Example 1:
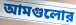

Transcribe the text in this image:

আমগুলোর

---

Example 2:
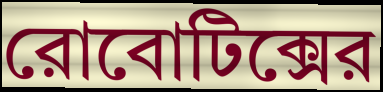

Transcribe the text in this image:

রোবোটিক্সের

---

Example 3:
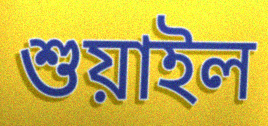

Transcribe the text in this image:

শুয়াইল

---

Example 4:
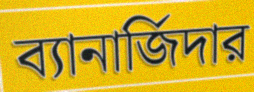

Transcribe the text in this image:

ব্যানার্জিদার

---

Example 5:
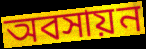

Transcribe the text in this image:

অবসায়ন